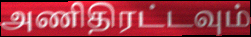
அணிதிரட்டவும்